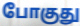
போகுது